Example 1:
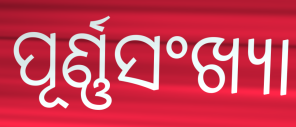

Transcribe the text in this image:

ପୂର୍ଣ୍ଣସଂଖ୍ୟା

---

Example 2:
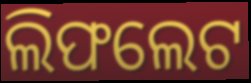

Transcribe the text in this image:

ଲିଫଲେଟ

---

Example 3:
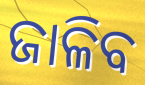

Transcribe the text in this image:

ଜାଳିବ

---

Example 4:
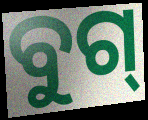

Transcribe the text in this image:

ବୁଗ୍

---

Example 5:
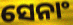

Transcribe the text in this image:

ସେନାଂ